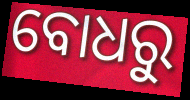
ବୋଧରୁ